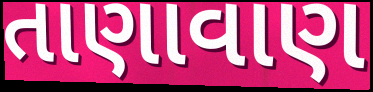
તાણાવાણ